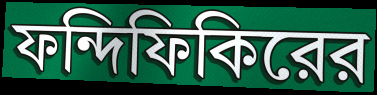
ফন্দিফিকিরের